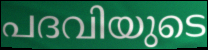
പദവിയുടെ